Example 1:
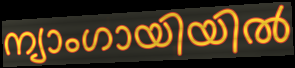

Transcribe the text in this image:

ന്യാംഗായിയിൽ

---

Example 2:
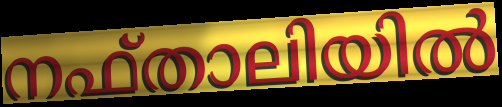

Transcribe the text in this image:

നഫ്താലിയിൽ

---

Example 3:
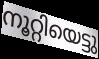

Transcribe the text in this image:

നൂറ്റിയെട്ടു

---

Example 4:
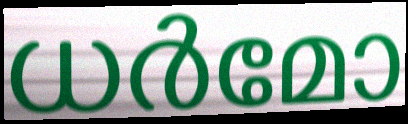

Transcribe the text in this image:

ധർമോ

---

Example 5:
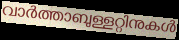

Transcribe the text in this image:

വാർത്താബുള്ളറ്റിനുകൾ